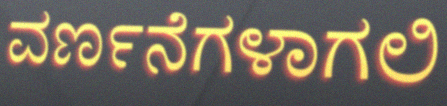
ವರ್ಣನೆಗಳಾಗಲಿ